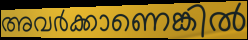
അവർക്കാണെങ്കിൽ